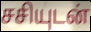
சசியுடன்